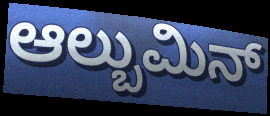
ಆಲ್ಬುಮಿನ್